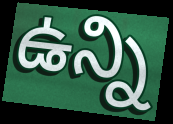
ఉన్ని